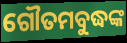
ଗୌତମବୁଦ୍ଧଙ୍କ